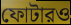
ফোটারও